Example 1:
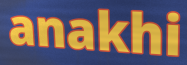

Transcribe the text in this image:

anakhi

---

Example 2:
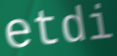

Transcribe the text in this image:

etdi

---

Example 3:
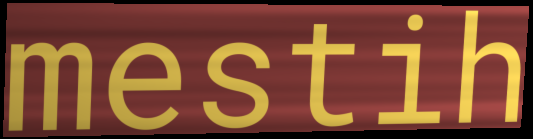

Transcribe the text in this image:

mestih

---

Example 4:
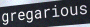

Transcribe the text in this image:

gregarious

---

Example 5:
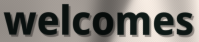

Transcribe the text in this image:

welcomes